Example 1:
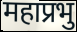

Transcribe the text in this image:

महाप्रभु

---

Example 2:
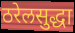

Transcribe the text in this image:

ठरेलसुद्धा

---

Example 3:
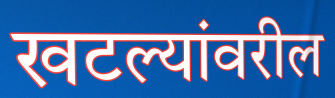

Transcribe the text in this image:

खटल्यांवरील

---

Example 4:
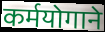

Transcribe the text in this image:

कर्मयोगाने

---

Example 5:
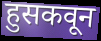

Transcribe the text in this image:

हुसकवून